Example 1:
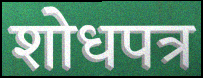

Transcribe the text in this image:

शोधपत्र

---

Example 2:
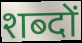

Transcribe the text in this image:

शब्‍दों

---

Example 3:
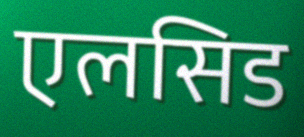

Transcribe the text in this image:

एलसिड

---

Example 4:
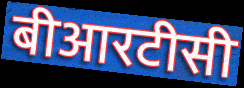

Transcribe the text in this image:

बीआरटीसी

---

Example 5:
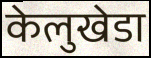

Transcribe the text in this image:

केलुखेडा